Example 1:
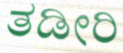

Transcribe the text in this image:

ತಡೀರಿ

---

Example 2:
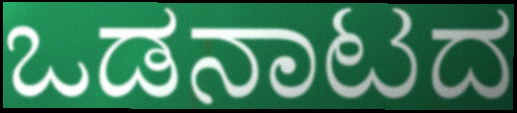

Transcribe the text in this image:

ಒಡನಾಟದ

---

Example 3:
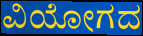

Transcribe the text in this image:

ವಿಯೋಗದ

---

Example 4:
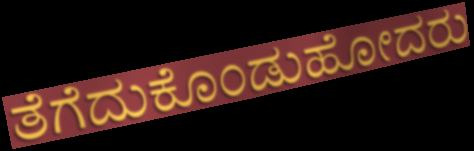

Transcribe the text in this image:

ತೆಗೆದುಕೊಂಡುಹೋದರು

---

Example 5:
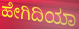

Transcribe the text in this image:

ಹೇಗಿದಿಯಾ